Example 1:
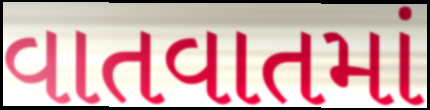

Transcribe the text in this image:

વાતવાતમાં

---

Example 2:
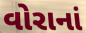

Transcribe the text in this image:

વોરાનાં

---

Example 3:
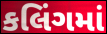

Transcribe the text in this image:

કલિંગમાં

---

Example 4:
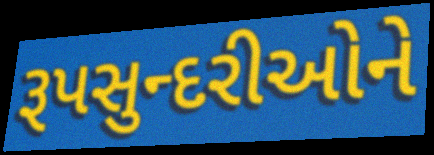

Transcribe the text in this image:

રૂપસુન્દરીઓને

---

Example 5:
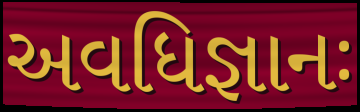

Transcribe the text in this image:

અવધિજ્ઞાનઃ